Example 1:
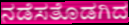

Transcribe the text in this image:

ನಡೆಸತೊಡಗಿದ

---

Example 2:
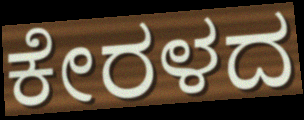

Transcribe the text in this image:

ಕೇರಳದ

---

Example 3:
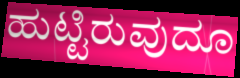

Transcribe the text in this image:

ಹುಟ್ಟಿರುವುದೂ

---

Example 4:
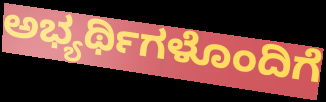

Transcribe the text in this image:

ಅಭ್ಯರ್ಥಿಗಳೊಂದಿಗೆ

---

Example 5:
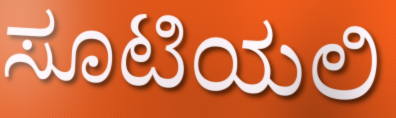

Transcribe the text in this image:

ಸೂಟಿಯಲಿ